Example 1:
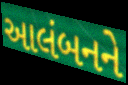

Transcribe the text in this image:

આલંબનને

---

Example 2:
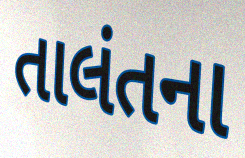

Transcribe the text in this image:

તાલંતના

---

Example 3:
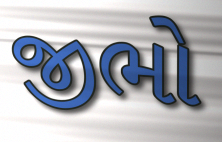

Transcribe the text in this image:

જીભો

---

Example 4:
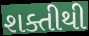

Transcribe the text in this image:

શક્તીથી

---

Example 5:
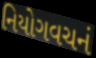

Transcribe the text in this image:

નિયોગવચનં